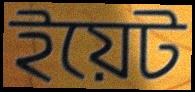
ইয়েট